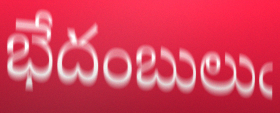
భేదంబులుఁ